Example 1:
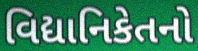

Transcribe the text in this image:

વિદ્યાનિકેતનો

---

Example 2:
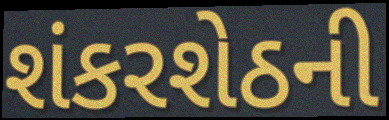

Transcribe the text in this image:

શંકરશેઠની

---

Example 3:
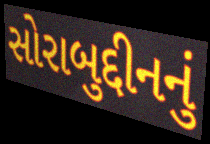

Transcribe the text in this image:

સોરાબુદ્દીનનું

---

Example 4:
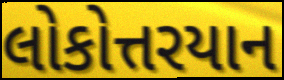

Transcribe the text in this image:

લોકોત્તરયાન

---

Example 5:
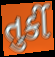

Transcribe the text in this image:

તુર્કી